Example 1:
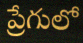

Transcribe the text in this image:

ప్రేగులో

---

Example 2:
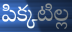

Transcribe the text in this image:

పిక్కటిల్ల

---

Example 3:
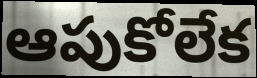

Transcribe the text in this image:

ఆపుకోలేక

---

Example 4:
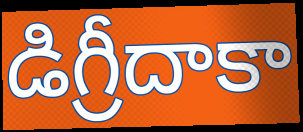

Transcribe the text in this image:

డిగ్రీదాకా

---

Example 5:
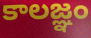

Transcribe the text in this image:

కాలజ్ఞం